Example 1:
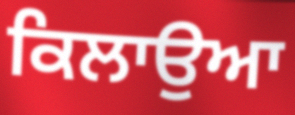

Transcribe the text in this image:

ਕਿਲਾਉਆ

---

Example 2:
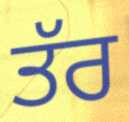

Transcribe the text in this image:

ਤੱਰ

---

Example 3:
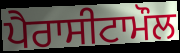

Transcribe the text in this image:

ਪੈਰਾਸੀਟਾਮੌਲ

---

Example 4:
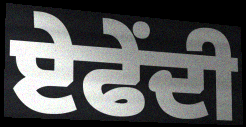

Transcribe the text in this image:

ਏਫੇਂਦੀ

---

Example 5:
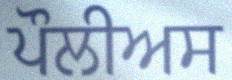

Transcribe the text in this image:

ਪੌਲੀਅਸ